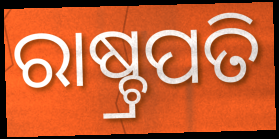
ରାଷ୍ଚ୍ରପତି